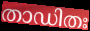
താഡിതഃ